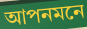
আপনমনে